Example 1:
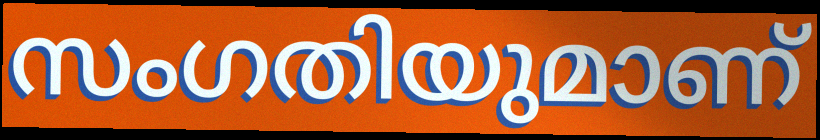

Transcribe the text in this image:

സംഗതിയുമാണ്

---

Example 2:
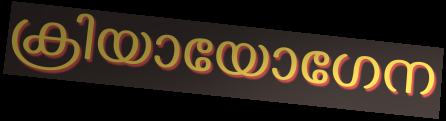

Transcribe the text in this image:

ക്രിയായോഗേന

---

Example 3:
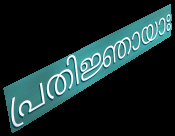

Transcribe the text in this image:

പ്രതിജ്ഞായാഃ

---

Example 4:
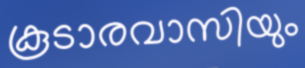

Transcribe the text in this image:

കൂടാരവാസിയും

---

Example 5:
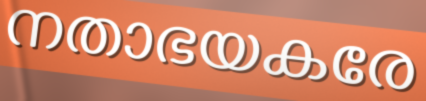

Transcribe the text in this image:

നതാഭയകരേ